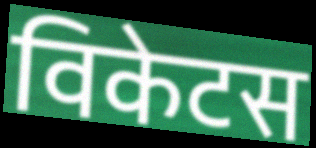
विकेटस